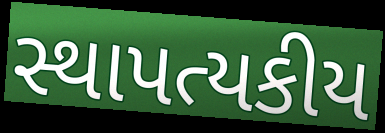
સ્થાપત્યકીય